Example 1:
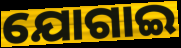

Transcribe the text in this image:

ଯୋଗାଇ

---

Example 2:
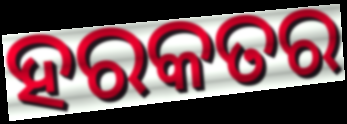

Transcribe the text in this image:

ହରକତର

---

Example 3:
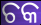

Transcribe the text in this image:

ଚକ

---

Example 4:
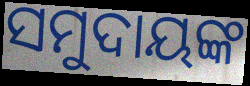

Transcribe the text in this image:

ସମୁଦାୟଙ୍କ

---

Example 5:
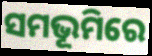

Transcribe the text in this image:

ସମଭୂମିରେ